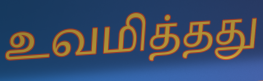
உவமித்தது